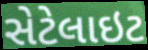
સેટેલાઇટ